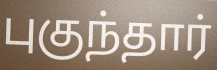
புகுந்தார்